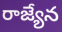
రాజ్యేన